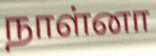
நாள்னா